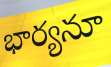
భార్యనూ